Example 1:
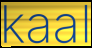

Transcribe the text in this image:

kaal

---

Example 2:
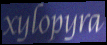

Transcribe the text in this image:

xylopyra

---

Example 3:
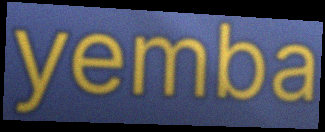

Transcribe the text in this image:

yemba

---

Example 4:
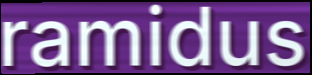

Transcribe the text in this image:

ramidus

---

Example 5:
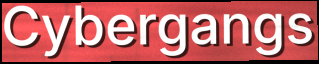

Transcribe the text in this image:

Cybergangs